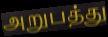
அறுபத்து